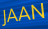
JAAN